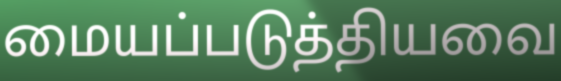
மையப்படுத்தியவை